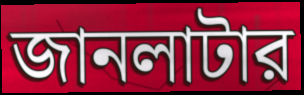
জানলাটার